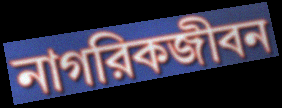
নাগরিকজীবন